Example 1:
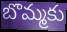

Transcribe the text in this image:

బొమ్మకు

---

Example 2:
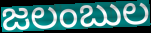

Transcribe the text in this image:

జలంబుల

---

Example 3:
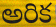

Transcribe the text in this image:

అరిక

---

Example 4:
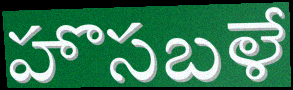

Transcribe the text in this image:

హొసబళే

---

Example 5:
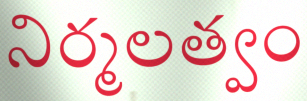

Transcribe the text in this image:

నిర్మలత్వం